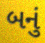
બનું